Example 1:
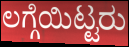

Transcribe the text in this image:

ಲಗ್ಗೆಯಿಟ್ಟರು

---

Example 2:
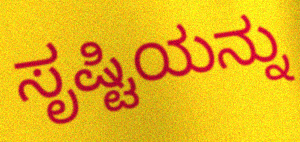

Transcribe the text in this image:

ಸೃಷ್ಟಿಯನ್ನು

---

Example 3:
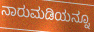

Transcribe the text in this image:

ನಾರುಮಡಿಯನ್ನೂ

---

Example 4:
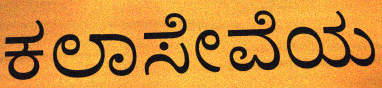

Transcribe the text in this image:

ಕಲಾಸೇವೆಯ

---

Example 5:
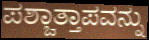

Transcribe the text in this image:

ಪಶ್ಚಾತ್ತಾಪವನ್ನು